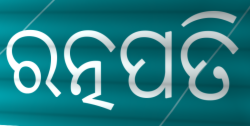
ରତ୍ନପତି